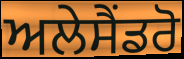
ਅਲੇਸੈਂਡਰੋ